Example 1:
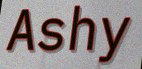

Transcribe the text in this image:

Ashy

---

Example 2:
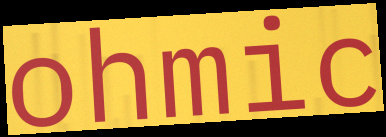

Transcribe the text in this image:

ohmic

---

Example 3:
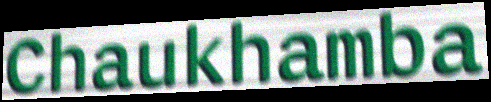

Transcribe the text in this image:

Chaukhamba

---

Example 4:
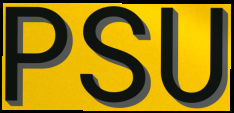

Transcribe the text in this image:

PSU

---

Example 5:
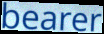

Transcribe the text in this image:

bearer